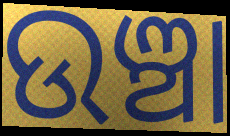
ଉଞ୍ଚା